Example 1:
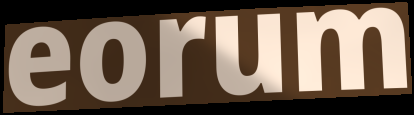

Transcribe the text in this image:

eorum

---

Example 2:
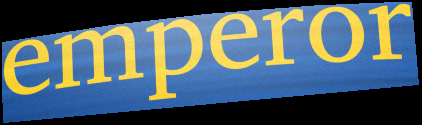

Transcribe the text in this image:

emperor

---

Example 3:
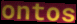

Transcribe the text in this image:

ontos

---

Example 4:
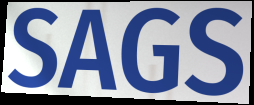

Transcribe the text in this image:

SAGS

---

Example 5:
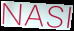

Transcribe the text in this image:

NASI